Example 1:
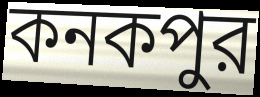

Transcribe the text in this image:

কনকপুর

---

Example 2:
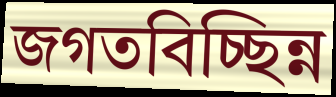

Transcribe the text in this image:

জগতবিচ্ছিন্ন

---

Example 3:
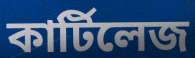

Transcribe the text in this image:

কার্টিলেজ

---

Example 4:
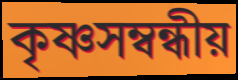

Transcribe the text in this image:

কৃষ্ণসম্বন্ধীয়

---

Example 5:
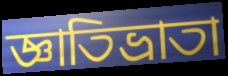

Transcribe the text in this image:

জ্ঞাতিভ্রাতা